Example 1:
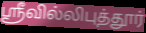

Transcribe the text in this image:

ஸ்ரீவில்லிபுத்தூர்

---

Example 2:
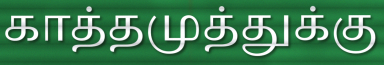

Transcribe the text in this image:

காத்தமுத்துக்கு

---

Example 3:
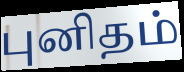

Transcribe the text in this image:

புனிதம்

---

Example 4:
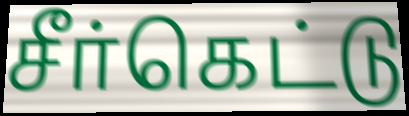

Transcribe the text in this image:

சீர்கெட்டு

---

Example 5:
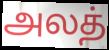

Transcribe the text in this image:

அலத்